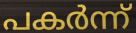
പകർന്ന്